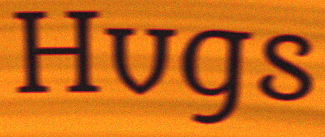
Hugs